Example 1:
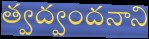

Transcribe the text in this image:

త్వద్వందనాని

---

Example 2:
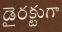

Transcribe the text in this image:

డైరక్టుగా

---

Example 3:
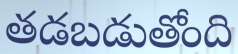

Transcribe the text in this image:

తడబడుతోంది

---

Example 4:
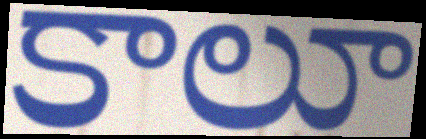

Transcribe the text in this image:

కాలూ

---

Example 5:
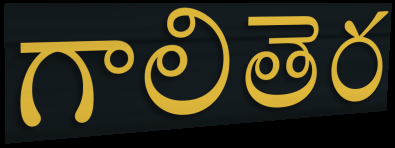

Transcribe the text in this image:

గాలితెర